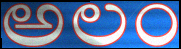
అలం